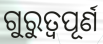
ଗୁରୁତ୍ୱପୂର୍ଣ